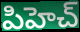
పిహెచ్